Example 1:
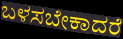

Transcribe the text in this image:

ಬಳಸಬೇಕಾದರೆ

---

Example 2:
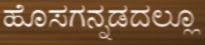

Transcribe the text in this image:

ಹೊಸಗನ್ನಡದಲ್ಲೂ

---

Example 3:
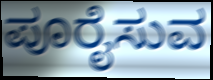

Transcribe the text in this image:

ಪೂರೈಸುವ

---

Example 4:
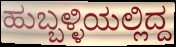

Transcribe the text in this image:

ಹುಬ್ಬಳ್ಳಿಯಲ್ಲಿದ್ದ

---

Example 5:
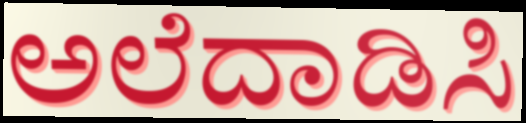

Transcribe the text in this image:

ಅಲೆದಾಡಿಸಿ